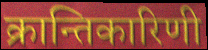
क्रान्तिकारिणी